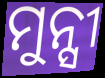
ମୁନ୍ସୀ